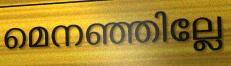
മെനഞ്ഞില്ലേ